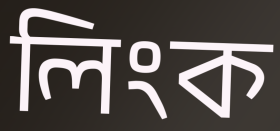
লিংক